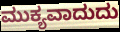
ಮುಕ್ಯವಾದುದು